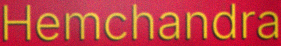
Hemchandra